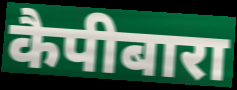
कैपीबारा